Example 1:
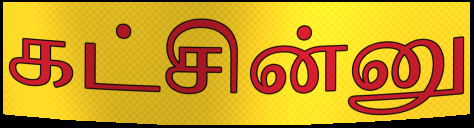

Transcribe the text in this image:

கட்சின்னு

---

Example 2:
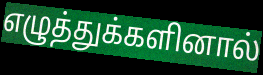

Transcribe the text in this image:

எழுத்துக்களினால்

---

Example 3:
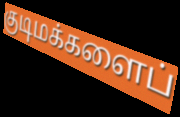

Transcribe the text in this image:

குடிமக்களைப்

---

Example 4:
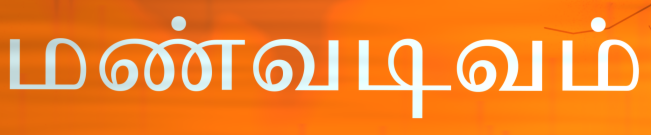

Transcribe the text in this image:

மண்வடிவம்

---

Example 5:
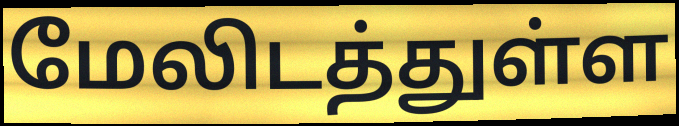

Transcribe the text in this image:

மேலிடத்துள்ள